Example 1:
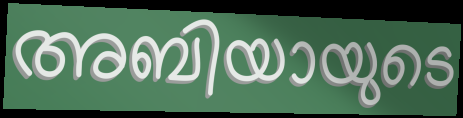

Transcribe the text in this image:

അബിയായുടെ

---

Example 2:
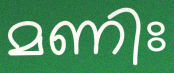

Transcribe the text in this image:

മണിഃ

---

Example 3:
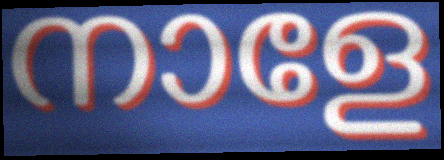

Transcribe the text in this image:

നാളേ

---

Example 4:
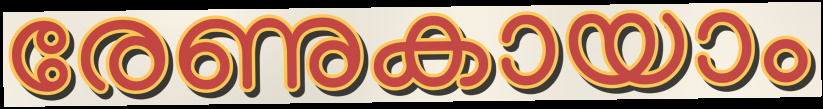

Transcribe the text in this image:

രേണുകായാം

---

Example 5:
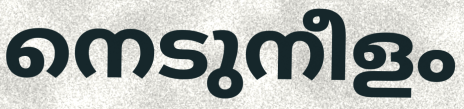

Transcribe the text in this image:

നെടുനീളം